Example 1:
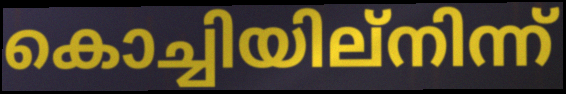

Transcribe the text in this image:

കൊച്ചിയില്നിന്ന്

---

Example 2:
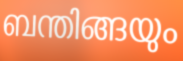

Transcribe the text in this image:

ബന്തിങ്ങയും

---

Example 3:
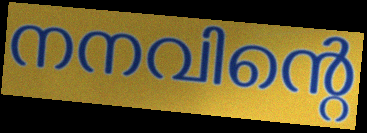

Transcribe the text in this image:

നനവിന്റെ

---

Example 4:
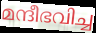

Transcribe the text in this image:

മന്ദീഭവിച്ച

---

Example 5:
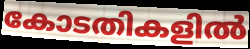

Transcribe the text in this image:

കോടതികളിൽ